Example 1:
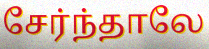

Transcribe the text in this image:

சேர்ந்தாலே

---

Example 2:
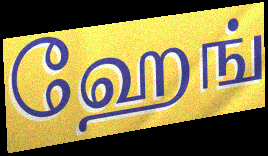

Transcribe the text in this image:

ஹேங்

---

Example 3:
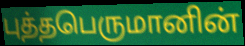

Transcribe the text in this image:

புத்தபெருமானின்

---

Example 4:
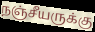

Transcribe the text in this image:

நஞ்சீயருக்கு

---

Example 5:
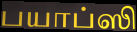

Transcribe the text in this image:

பயாப்ஸி